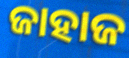
ଜାହାଜ